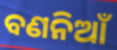
ବଣନିଆଁ